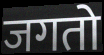
जगतो